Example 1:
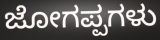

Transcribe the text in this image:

ಜೋಗಪ್ಪಗಳು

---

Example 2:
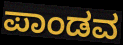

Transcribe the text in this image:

ಪಾಂಡವ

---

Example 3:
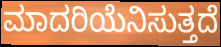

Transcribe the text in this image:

ಮಾದರಿಯೆನಿಸುತ್ತದೆ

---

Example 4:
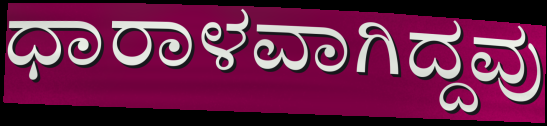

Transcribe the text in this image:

ಧಾರಾಳವಾಗಿದ್ದವು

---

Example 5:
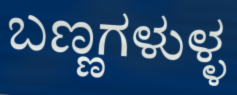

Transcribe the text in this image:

ಬಣ್ಣಗಳುಳ್ಳ